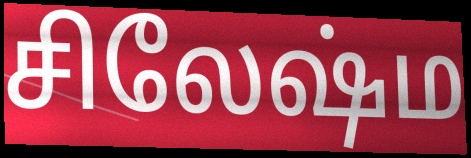
சிலேஷ்ம